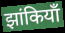
झांकियाँ